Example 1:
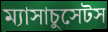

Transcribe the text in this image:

ম্যাসাচুসেটস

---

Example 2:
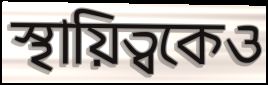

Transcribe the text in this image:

স্থায়িত্বকেও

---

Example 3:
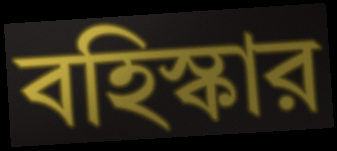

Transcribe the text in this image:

বহিস্কার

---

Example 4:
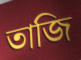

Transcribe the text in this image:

তাজি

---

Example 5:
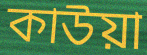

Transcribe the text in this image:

কাউয়া